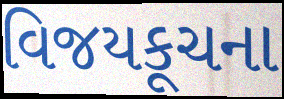
વિજયકૂચના